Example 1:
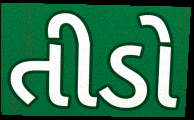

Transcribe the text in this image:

તીડો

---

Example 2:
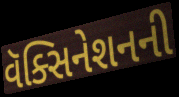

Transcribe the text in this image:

વૅક્સિનેશનની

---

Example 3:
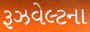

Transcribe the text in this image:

રૂઝવેલ્ટના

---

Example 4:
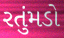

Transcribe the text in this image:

રતુંમડો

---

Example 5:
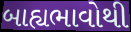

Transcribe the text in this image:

બાહ્યભાવોથી